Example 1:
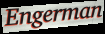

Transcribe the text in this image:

Engerman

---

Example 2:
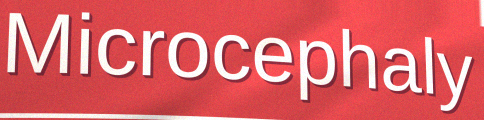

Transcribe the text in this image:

Microcephaly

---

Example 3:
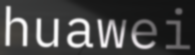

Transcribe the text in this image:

huawei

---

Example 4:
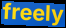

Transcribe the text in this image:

freely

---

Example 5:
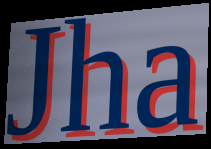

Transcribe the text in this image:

Jha